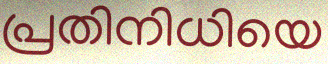
പ്രതിനിധിയെ